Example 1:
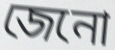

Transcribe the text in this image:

জেনো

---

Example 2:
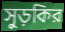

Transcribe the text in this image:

সুড়কির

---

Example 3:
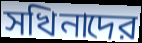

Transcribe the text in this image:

সখিনাদের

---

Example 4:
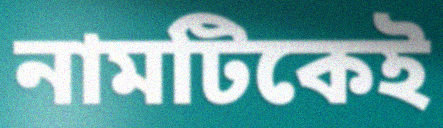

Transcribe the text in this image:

নামটিকেই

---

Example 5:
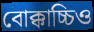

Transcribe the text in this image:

বোক্কাচ্চিও